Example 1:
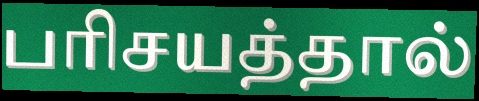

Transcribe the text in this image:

பரிசயத்தால்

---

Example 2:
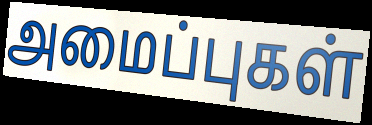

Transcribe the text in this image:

அமைப்புகள்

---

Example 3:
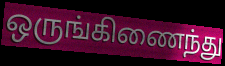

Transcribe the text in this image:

ஒருங்கிணைந்து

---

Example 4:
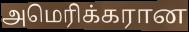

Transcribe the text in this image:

அமெரிக்கரான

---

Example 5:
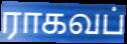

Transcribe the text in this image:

ராகவப்